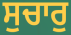
ਸੁਚਾਰੁ